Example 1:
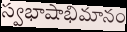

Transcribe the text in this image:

స్వభాషాభిమానం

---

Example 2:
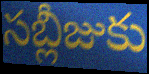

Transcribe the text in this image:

సబ్లీజుకు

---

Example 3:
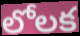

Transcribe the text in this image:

లోలక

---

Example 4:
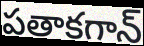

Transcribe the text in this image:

పతాకగాన్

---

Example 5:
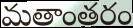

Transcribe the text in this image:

మతాంతరం